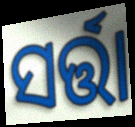
ସର୍ତ୍ତା